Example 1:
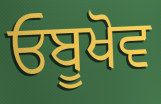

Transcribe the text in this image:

ਓਬੂਖੋਵ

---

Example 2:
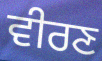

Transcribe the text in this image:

ਵੀਰਣ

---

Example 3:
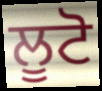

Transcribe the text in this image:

ਲੂਟੋ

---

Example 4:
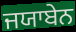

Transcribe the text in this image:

ਜਯਾਬੇਨ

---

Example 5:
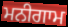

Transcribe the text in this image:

ਮਨੀਗਾਮ